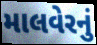
માલવેરનું